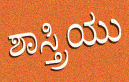
ಶಾಸ್ತ್ರಿಯು